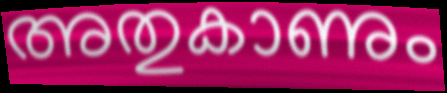
അതുകാണും